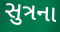
સુત્રના